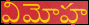
విమోహ